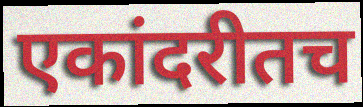
एकांदरीतच